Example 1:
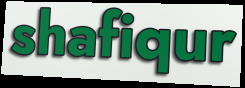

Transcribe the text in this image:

shafiqur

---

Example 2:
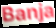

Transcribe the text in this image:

Banja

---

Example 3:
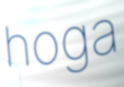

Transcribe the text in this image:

hoga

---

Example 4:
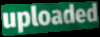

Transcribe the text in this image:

uploaded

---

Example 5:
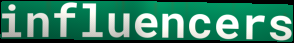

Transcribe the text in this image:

influencers